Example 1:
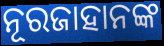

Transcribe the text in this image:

ନୂରଜାହାନଙ୍କ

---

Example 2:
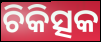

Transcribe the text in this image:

ଚିକିତ୍ସକ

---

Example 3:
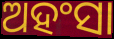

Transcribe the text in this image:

ଅହଂସା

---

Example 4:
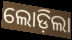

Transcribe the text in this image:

ଲୋଡ଼ିଲା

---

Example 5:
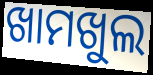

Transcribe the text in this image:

ଖାମଖୁଲ